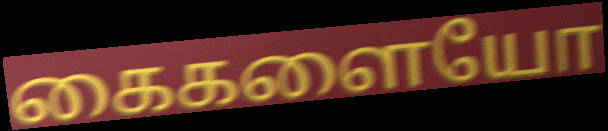
கைகளையோ